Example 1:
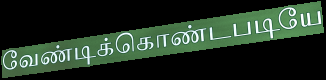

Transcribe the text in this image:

வேண்டிக்கொண்டபடியே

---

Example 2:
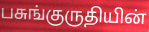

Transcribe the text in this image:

பசுங்குருதியின்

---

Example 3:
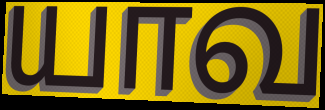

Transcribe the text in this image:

யாவ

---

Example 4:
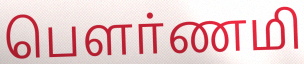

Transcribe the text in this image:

பௌர்ணமி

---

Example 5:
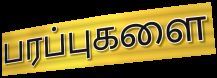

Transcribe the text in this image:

பரப்புகளை